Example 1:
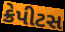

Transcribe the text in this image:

ક્રેપીટસ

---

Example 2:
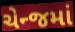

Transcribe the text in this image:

ચેન્જમાં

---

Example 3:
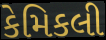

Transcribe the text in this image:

કેમિકલી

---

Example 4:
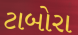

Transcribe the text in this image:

ટાબોરા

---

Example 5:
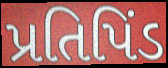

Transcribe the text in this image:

પ્રતિપિંડ